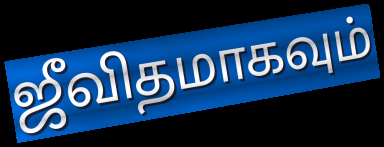
ஜீவிதமாகவும்